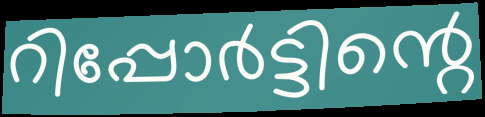
റിപ്പോർട്ടിന്റെ